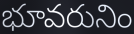
భూవరునిం